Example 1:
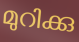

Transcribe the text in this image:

മുറിക്കു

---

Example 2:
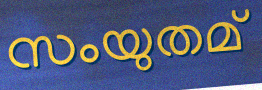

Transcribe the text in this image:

സംയുതമ്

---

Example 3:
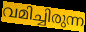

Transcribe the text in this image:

വമിച്ചിരുന്ന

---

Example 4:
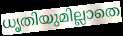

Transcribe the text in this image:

ധൃതിയുമില്ലാതെ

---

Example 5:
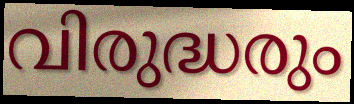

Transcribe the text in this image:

വിരുദ്ധരും